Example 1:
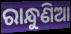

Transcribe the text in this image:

ରାନ୍ଧୁଣିଆ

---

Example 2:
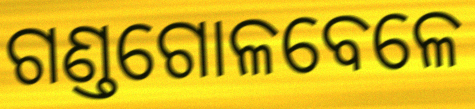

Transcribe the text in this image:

ଗଣ୍ଡଗୋଳବେଳେ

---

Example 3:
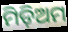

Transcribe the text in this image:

ମିଡ଼ିଅମ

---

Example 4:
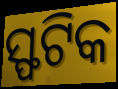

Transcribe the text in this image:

ସ୍ଫଟିକ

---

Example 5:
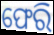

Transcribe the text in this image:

ଫେରି